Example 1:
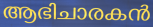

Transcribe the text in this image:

ആഭിചാരകൻ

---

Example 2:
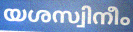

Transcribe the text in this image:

യശസ്വിനീം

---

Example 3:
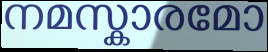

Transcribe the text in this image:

നമസ്കാരമോ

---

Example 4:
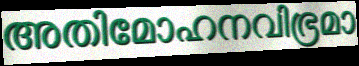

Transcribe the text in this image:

അതിമോഹനവിഭ്രമാ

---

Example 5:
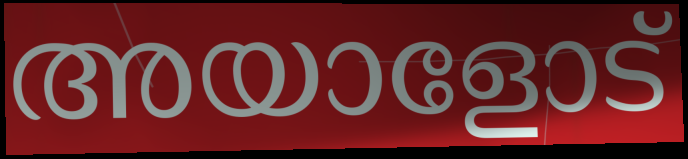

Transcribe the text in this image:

അയാളോട്